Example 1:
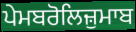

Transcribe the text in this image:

ਪੇਮਬਰੋਲਿਜ਼ੁਮਾਬ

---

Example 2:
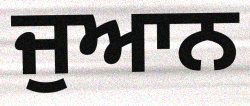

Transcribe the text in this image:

ਜੁਆਨ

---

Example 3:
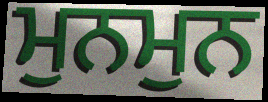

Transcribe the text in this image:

ਮੁਨਮੁਨ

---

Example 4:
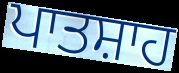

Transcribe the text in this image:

ਪਾਤਸ਼ਾਹ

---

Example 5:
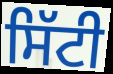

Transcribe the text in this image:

ਸਿੱਟੀ